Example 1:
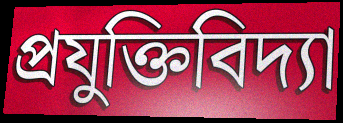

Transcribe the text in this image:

প্ৰযুক্তিবিদ্যা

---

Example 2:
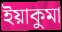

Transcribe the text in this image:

ইয়াকুমা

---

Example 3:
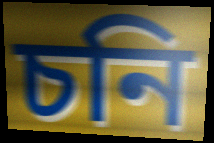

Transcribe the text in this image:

চনি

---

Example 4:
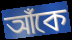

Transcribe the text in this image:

আঁকে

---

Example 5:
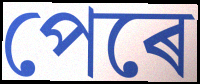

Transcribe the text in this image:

পেৰে